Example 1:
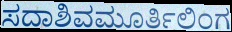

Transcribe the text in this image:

ಸದಾಶಿವಮೂರ್ತಿಲಿಂಗ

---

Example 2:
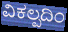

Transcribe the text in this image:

ವಿಕಲ್ಪದಿಂ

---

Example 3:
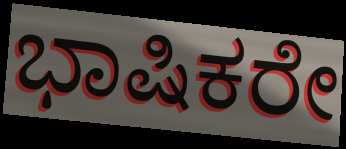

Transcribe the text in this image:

ಭಾಷಿಕರೇ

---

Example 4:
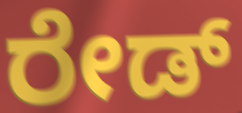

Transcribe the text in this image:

ರೇಡ್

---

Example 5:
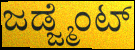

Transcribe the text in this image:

ಜಡ್ಜ್ಮೆಂಟ್